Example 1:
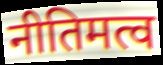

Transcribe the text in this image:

नीतिमत्व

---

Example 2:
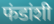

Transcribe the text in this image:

फंडांशी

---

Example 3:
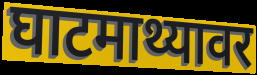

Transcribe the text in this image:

घाटमाथ्यावर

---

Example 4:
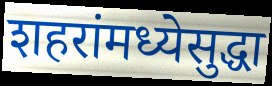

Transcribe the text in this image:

शहरांमध्येसुद्धा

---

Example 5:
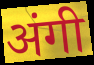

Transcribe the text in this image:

अंगी